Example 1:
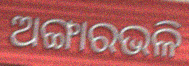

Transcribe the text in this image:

ଅଙ୍ଗାରଭଳି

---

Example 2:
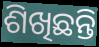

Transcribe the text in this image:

ଶିଖିଛନ୍ତି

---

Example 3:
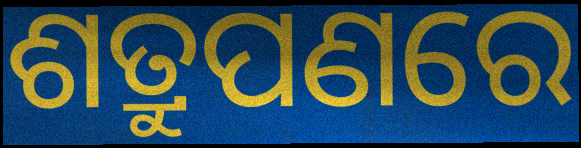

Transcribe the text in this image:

ଶତ୍ରୁପଣରେ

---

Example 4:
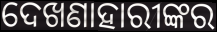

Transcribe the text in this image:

ଦେଖଣାହାରୀଙ୍କର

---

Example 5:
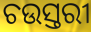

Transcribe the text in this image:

ଚଉସ୍ତରୀ